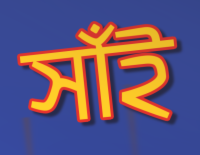
সাঁই